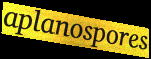
aplanospores